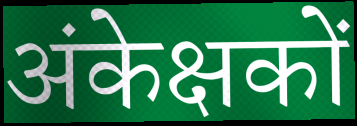
अंकेक्षकों